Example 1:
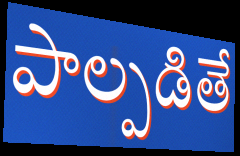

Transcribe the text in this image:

పాల్పడితే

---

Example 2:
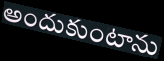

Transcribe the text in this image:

అందుకుంటాను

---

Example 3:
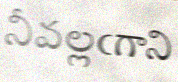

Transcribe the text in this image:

నీవల్లఁగాని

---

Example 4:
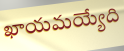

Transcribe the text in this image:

ఖాయమయ్యేది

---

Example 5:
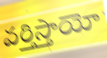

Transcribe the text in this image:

వర్తిస్తాయో